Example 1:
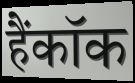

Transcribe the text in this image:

हैंकॉक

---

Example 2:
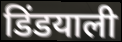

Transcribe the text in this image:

डिंडयाली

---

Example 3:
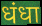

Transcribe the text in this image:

धंधा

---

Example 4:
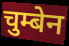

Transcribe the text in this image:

चुम्बेन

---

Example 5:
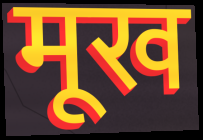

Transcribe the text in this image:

मूख